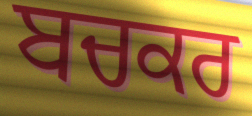
ਬਚਕਰ